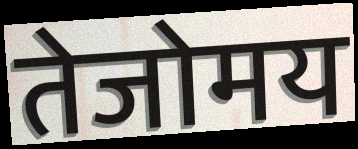
तेजोमय